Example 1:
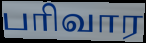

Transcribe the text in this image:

பரிவார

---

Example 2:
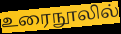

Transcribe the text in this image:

உரைநூலில்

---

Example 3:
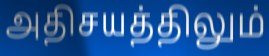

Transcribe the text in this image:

அதிசயத்திலும்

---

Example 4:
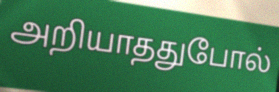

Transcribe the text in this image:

அறியாததுபோல்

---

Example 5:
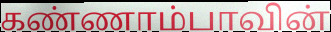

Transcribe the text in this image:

கண்ணாம்பாவின்